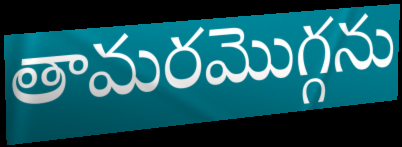
తామరమొగ్గను